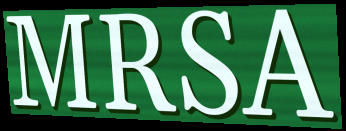
MRSA